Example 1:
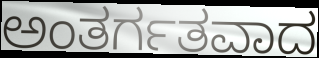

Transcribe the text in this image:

ಅಂತರ್ಗತವಾದ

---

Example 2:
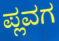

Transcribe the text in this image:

ಪ್ಲವಗ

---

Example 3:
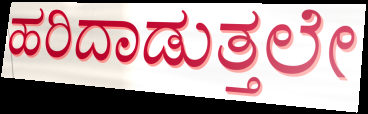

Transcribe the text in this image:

ಹರಿದಾಡುತ್ತಲೇ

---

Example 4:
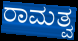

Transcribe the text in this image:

ರಾಮತ್ವ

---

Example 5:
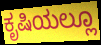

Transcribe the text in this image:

ಕೃಷಿಯಲ್ಲೂ